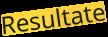
Resultate